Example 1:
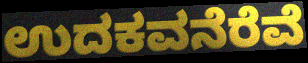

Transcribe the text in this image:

ಉದಕವನೆರೆವೆ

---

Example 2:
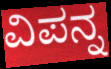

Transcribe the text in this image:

ವಿಪನ್ನ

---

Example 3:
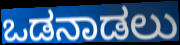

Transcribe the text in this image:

ಒಡನಾಡಲು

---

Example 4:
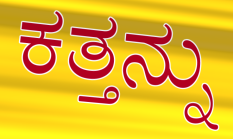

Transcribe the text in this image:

ಕತ್ತನ್ನು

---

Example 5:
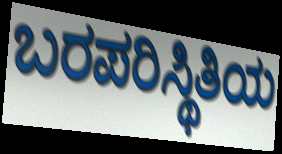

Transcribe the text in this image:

ಬರಪರಿಸ್ಥಿತಿಯ